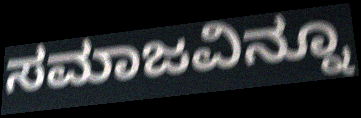
ಸಮಾಜವಿನ್ನೂ